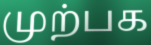
முற்பக